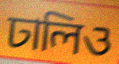
ঢালিও